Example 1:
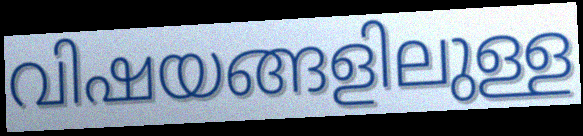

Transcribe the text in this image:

വിഷയങ്ങളിലുള്ള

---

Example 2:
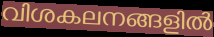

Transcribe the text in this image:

വിശകലനങ്ങളിൽ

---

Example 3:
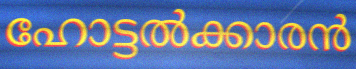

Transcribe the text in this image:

ഹോട്ടൽക്കാരൻ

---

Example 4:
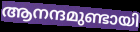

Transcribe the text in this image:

ആനന്ദമുണ്ടായി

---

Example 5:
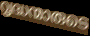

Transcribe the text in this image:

വൃദ്ധന്മാരുടെ